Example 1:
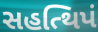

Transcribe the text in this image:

સહત્થિપં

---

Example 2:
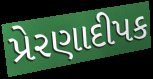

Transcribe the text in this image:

પ્રેરણાદીપક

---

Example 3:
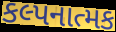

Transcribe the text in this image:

કલ્પનાત્મક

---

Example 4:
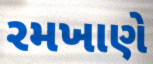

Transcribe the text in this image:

રમખાણે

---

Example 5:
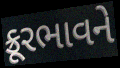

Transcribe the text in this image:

ક્રૂરભાવને